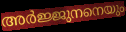
അർജ്ജുനനെയും